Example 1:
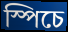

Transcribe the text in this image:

স্পিচে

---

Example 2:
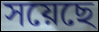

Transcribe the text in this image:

সয়েছে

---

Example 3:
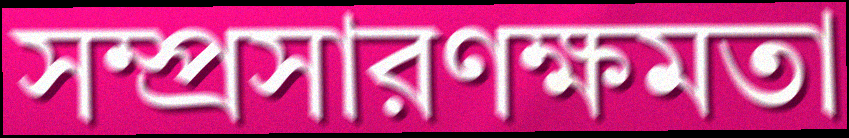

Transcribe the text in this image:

সম্প্রসারণক্ষমতা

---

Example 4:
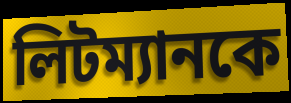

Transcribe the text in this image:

লিটম্যানকে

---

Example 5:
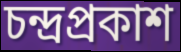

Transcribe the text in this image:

চন্দ্রপ্রকাশ